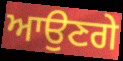
ਆਉਣਗੇ